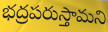
భద్రపరుస్తామని